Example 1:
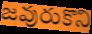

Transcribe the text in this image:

జవురుకొని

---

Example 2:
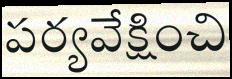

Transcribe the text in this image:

పర్యవేక్షించి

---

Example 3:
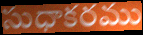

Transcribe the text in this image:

సుధాకరము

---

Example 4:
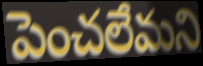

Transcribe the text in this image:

పెంచలేమని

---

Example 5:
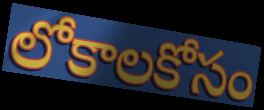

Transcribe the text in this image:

లోకాలకోసం